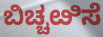
ಬಿಚ್ಚೞಿಸೆ